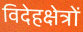
विदेहक्षेत्रों